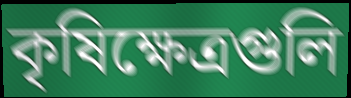
কৃষিক্ষেত্রগুলি